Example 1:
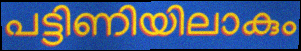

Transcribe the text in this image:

പട്ടിണിയിലാകും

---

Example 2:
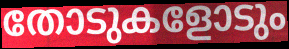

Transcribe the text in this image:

തോടുകളോടും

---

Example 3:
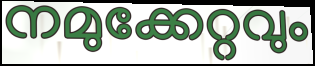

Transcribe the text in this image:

നമുക്കേറ്റവും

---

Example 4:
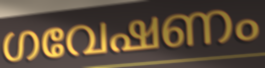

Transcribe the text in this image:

ഗവേഷണം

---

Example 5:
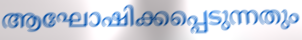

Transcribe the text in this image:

ആഘോഷിക്കപ്പെടുന്നതും